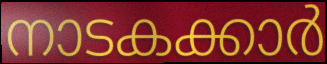
നാടകക്കാർ